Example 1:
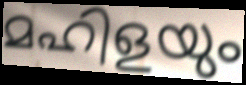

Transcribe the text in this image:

മഹിളയും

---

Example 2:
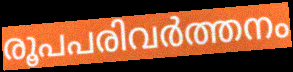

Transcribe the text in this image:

രൂപപരിവർത്തനം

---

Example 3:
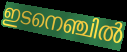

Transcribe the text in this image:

ഇടനെഞ്ചിൽ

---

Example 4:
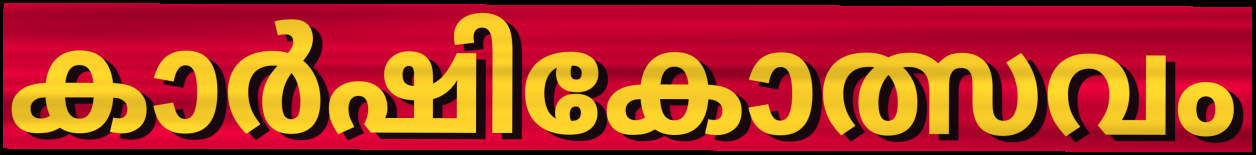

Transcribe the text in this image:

കാർഷികോത്സവം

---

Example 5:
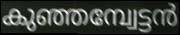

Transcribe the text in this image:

കുഞ്ഞമ്പ്വേട്ടൻ